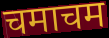
चमाचम